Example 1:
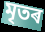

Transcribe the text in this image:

মৃতৰ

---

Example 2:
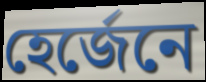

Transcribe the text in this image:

হেৰ্জেনে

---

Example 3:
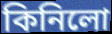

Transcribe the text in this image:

কিনিলো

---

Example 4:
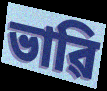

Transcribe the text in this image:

ভাৱি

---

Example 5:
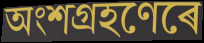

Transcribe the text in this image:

অংশগ্ৰহণেৰে